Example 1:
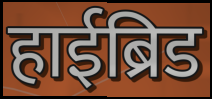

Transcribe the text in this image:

हाईब्रिड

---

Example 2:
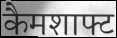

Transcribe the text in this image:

कैमशाफ्ट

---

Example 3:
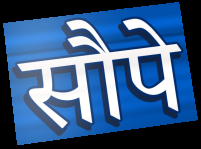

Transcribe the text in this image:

सौपे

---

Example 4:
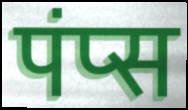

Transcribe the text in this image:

पंप्स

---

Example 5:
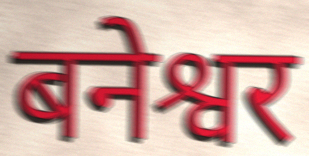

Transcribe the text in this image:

बनेश्वर